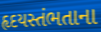
હૃદયસ્તંભતાના